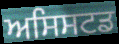
ਅਸਿਸਟਡ